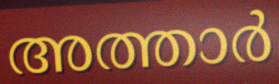
അത്താർ